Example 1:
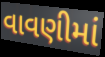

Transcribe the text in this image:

વાવણીમાં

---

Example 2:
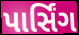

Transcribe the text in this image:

પાર્સિંગ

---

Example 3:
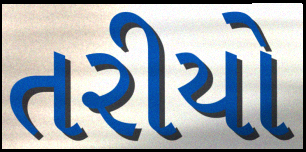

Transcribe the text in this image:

તરીયો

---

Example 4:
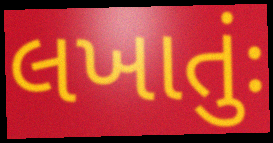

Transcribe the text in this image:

લખાતુંઃ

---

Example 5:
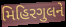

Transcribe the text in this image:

મિહિરગુલને